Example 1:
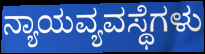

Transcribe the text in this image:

ನ್ಯಾಯವ್ಯವಸ್ಥೆಗಳು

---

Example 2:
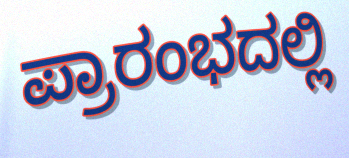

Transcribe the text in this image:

ಪ್ರಾರಂಭದಲ್ಲಿ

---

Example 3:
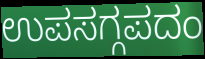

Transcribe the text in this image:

ಉಪಸಗ್ಗಪದಂ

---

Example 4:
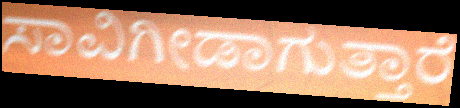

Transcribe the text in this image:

ಸಾವಿಗೀಡಾಗುತ್ತಾರೆ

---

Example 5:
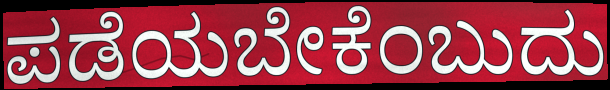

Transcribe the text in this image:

ಪಡೆಯಬೇಕೆಂಬುದು